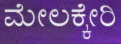
ಮೇಲಕ್ಕೇರಿ